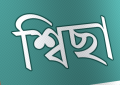
শ্বিছা